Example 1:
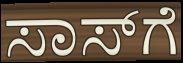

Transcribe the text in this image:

ಸಾಸ್‌ಗೆ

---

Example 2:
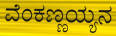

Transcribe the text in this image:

ವೆಂಕಣ್ಣಯ್ಯನ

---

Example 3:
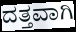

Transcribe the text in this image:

ದತ್ತವಾಗಿ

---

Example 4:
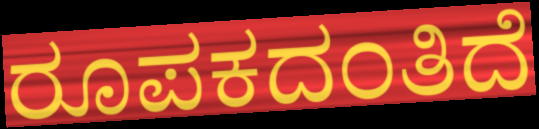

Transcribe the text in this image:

ರೂಪಕದಂತಿದೆ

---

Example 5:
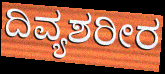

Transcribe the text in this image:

ದಿವ್ಯಶರೀರ